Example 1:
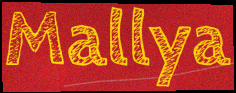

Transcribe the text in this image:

Mallya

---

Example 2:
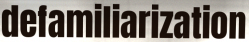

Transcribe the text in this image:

defamiliarization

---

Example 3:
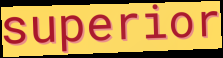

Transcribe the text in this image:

superior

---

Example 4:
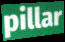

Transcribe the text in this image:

pillar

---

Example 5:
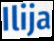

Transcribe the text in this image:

Ilija